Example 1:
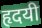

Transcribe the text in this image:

हृदयी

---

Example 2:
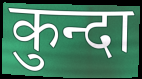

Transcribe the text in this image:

कुन्दा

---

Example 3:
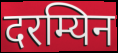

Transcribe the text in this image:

दरम्यिन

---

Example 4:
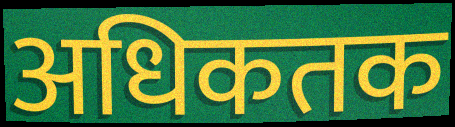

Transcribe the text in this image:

अधिकतक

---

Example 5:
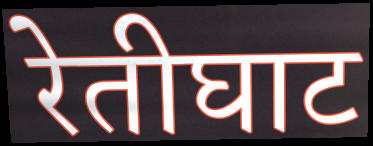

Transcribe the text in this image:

रेतीघाट